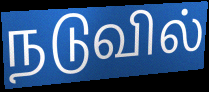
நடுவில்